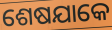
ଶେଷଯାକେ